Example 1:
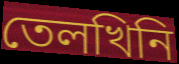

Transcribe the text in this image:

তেলখিনি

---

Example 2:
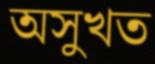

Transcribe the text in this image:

অসুখত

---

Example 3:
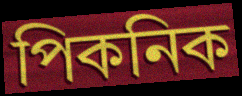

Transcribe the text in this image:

পিকনিক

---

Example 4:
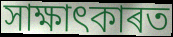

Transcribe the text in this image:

সাক্ষাৎকাৰত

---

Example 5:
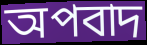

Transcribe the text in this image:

অপবাদ